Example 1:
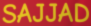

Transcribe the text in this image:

SAJJAD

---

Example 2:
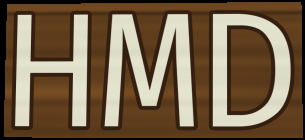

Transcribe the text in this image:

HMD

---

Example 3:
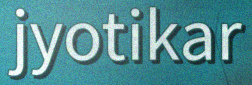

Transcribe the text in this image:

jyotikar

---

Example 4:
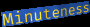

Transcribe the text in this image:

Minuteness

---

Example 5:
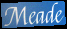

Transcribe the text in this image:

Meade